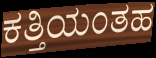
ಕತ್ತಿಯಂತಹ